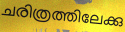
ചരിത്രത്തിലേക്കു